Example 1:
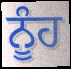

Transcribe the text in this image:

ਨੂੰਹ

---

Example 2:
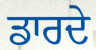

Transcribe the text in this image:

ਡਾਰਦੇ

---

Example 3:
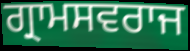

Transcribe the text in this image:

ਗ੍ਰਾਮਸਵਰਾਜ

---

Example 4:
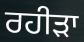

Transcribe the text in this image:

ਰਹੀੜਾ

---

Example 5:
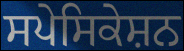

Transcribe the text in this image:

ਸਪੇਸਿਕੇਸ਼ਨ